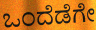
ಒಂದೆಡೆಗೇ